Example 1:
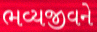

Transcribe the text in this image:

ભવ્યજીવને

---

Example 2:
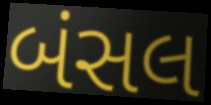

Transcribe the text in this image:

બંસલ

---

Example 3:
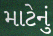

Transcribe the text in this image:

માટેનું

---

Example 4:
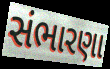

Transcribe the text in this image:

સંભારણા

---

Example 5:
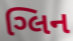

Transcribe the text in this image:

ગ્લિન